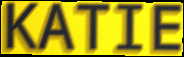
KATIE